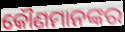
କୌଣମାନଙ୍କର